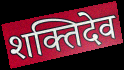
शक्तिदेव